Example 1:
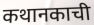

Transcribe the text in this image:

कथानकाची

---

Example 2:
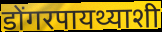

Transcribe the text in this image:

डोंगरपायथ्याशी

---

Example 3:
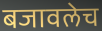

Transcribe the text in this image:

बजावलेच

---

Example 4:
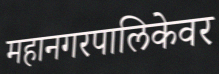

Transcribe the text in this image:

महानगरपालिकेवर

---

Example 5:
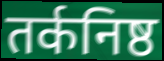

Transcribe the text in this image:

तर्कनिष्ठ